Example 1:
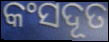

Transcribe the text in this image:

କଂସଦୂତ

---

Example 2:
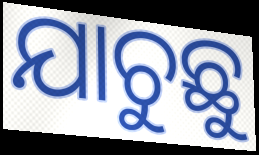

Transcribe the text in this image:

ଯାଚୁଛୁ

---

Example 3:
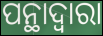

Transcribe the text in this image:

ପନ୍ଥାଦ୍ୱାରା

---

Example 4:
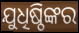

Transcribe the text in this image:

ଯୁଧିଷ୍ଠିଙ୍କର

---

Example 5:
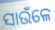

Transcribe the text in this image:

ସାଉଁଳେ